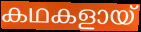
കഥകളായ്